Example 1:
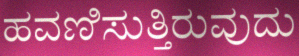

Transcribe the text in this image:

ಹವಣಿಸುತ್ತಿರುವುದು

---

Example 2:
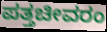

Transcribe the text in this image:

ಪತ್ತಚೀವರಂ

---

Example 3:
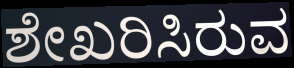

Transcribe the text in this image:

ಶೇಖರಿಸಿರುವ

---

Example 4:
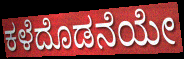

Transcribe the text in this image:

ಕಳೆದೊಡನೆಯೇ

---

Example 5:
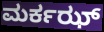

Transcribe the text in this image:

ಮರ್ಕಝ್